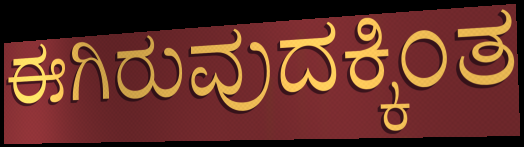
ಈಗಿರುವುದಕ್ಕಿಂತ